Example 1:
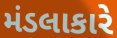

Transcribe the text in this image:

મંડલાકારે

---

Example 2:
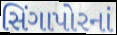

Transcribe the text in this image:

સિંગાપોરનાં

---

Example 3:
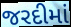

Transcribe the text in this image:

જરદીમાં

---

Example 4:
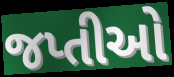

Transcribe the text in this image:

જપ્તીઓ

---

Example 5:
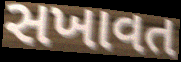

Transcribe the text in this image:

સખાવત